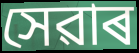
সেৱাৰ